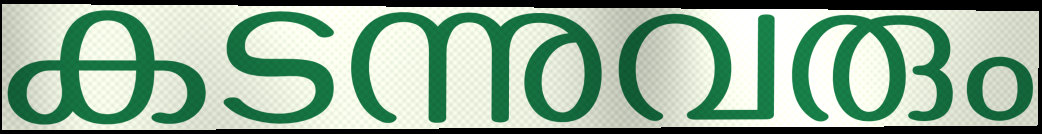
കടന്നുവരും